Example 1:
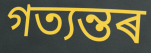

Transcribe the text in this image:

গত্যন্তৰ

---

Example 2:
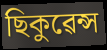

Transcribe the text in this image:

ছিকুৱেন্স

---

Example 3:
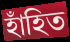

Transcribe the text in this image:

হাঁহিত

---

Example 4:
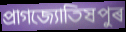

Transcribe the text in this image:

প্ৰাগজ্যোতিষপুৰ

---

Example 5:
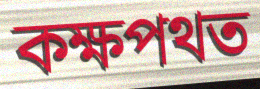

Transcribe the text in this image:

কক্ষপথত